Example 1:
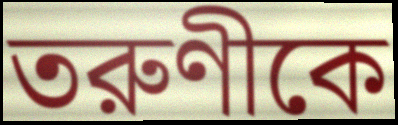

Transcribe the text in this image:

তরুণীকে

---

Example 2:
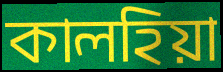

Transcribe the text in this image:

কালহিয়া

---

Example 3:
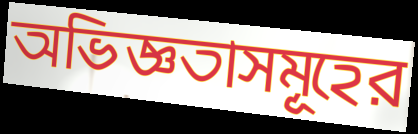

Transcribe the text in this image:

অভিজ্ঞতাসমূহের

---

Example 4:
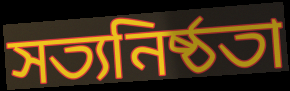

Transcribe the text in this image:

সত্যনিষ্ঠতা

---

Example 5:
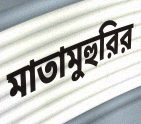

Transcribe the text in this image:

মাতামুহুরির